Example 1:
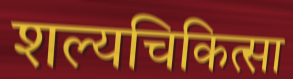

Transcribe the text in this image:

शल्‍यचिकित्‍सा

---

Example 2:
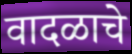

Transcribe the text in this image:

वादळाचे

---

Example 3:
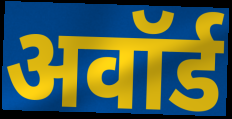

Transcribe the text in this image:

अवॉर्ड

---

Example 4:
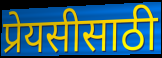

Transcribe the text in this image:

प्रेयसीसाठी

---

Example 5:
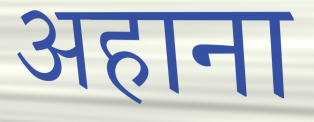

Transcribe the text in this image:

अहाना